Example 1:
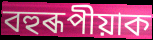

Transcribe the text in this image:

বহুৰূপীয়াক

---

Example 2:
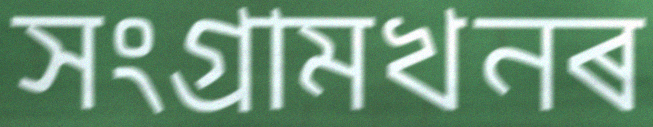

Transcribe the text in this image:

সংগ্ৰামখনৰ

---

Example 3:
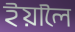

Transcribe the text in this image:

ইয়ালৈ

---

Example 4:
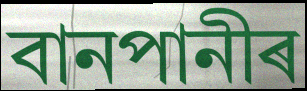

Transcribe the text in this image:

বানপানীৰ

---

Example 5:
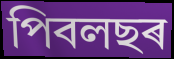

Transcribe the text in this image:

পিবলছৰ